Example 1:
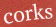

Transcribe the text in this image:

corks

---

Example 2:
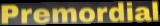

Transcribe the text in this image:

Premordial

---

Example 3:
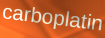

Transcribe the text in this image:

carboplatin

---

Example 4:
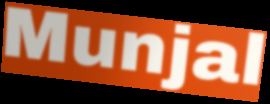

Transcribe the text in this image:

Munjal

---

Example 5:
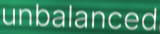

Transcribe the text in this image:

unbalanced